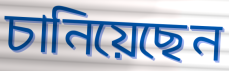
চানিয়েছেন